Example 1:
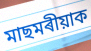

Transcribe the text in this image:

মাছমৰীয়াক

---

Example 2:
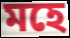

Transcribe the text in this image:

মহে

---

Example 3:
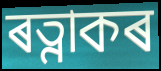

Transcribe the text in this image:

ৰত্নাকৰ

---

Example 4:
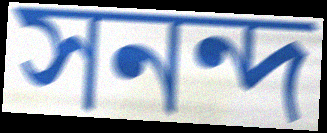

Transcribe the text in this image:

সনন্দ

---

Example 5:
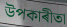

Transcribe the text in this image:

উপকাৰীতা